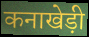
कनाखेड़ी